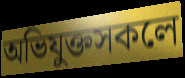
অভিযুক্তসকলে